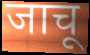
जाचू